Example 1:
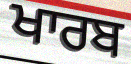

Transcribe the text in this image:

ਖਾਰਬ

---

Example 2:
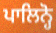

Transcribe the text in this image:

ਪਾਲਿਨ੍ਹੋ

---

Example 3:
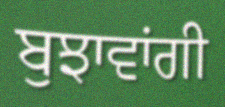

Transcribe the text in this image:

ਬੁਝਾਵਾਂਗੀ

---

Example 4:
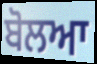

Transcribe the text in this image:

ਬੋਲਆ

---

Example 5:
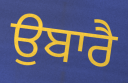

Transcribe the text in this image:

ਉਬਾਰੈ